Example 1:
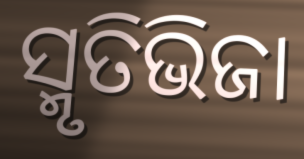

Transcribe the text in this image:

ସ୍ମୃତିଭିଜା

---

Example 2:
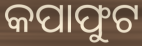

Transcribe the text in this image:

କପାଫୁଟ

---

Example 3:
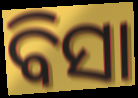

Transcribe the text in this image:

ବିସା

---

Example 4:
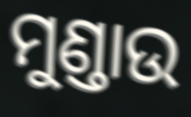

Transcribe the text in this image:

ମୁଣ୍ଡାଉ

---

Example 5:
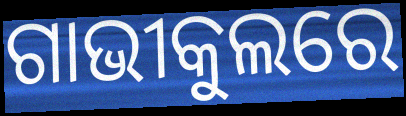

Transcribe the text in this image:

ଗାଭୀକୁଲରେ